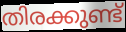
തിരക്കുണ്ട്